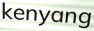
kenyang